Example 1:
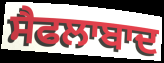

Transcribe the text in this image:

ਸੈਫਲਾਬਾਦ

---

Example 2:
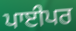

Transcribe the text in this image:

ਪਾਈਪਰ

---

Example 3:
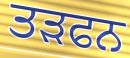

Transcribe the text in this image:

ਤੜਫਨ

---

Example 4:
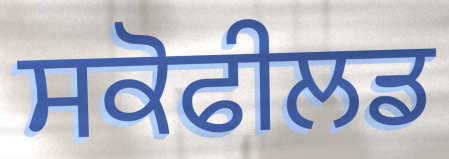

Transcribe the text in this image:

ਸਕੋਫੀਲਡ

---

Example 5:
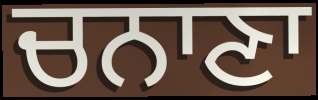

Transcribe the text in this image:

ਚਨਾਣਾ